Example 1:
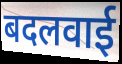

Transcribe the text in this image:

बदलवाई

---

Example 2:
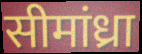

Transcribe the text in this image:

सीमांध्रा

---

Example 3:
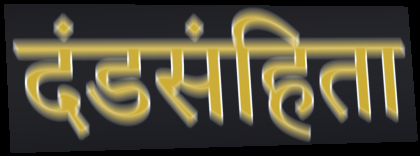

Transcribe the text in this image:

दंडसंहिता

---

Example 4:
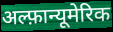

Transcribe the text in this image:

अल्फ़ान्यूमेरिक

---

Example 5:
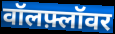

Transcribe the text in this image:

वॉलफ़्लॉवर